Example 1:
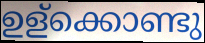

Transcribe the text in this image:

ഉള്ക്കൊണ്ടു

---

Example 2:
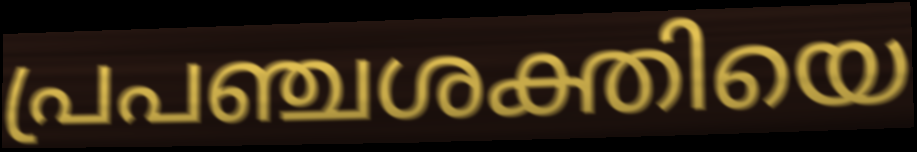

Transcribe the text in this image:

പ്രപഞ്ചശക്തിയെ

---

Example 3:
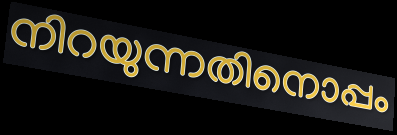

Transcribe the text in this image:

നിറയുന്നതിനൊപ്പം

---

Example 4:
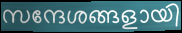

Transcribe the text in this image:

സന്ദേശങ്ങളായി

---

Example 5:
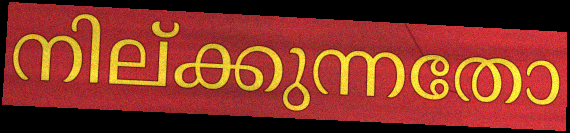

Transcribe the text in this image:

നില്ക്കുന്നതോ